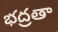
భద్రతా